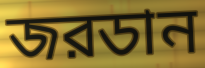
জরডান